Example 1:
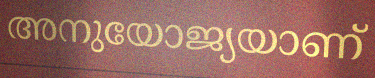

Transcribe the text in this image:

അനുയോജ്യയാണ്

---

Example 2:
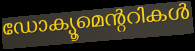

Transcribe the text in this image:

ഡോക്യൂമെന്ററികൾ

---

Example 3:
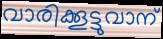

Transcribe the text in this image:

വാരിക്കൂട്ടുവാന്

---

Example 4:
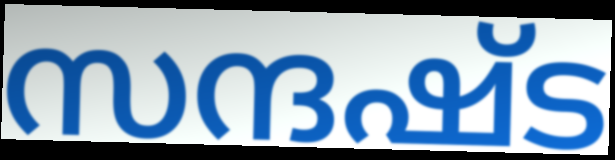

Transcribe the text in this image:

സന്ദഷ്ട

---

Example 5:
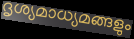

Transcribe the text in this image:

ദൃശ്യമാധ്യമങ്ങളും